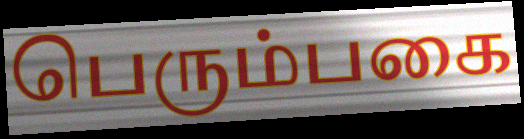
பெரும்பகை